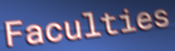
Faculties